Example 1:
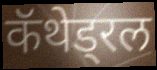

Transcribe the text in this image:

कॅथेड्रल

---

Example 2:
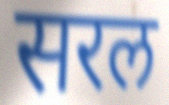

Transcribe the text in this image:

सरल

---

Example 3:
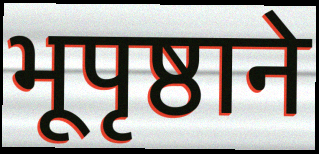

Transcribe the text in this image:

भूपृष्ठाने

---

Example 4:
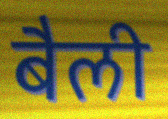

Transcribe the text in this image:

बैली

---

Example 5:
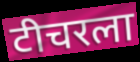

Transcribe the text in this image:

टीचरला